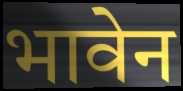
भावेन